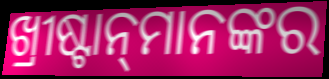
ଖ୍ରୀଷ୍ଟାନ୍‌ମାନଙ୍କର